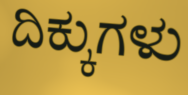
ದಿಕ್ಕುಗಳು